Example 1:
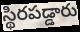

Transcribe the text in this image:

స్థిరపడ్డారు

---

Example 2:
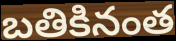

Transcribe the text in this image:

బతికినంత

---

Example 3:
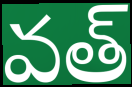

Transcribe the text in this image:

వత్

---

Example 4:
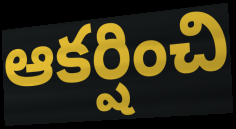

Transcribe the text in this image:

ఆకర్షించి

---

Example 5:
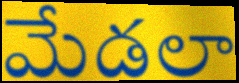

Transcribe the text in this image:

మేడలా